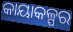
କାୟାକଳ୍ପର